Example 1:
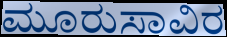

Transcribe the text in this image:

ಮೂರುಸಾವಿರ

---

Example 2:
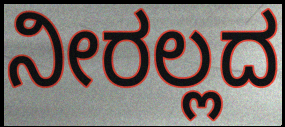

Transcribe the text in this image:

ನೀರಲ್ಲದ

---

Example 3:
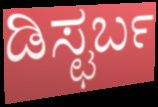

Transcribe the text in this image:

ಡಿಸ್ಟರ್ಬ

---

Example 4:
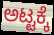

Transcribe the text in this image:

ಅಟ್ಟಕ್ಕೆ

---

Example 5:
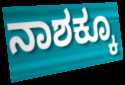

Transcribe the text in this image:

ನಾಶಕ್ಕೂ